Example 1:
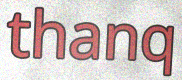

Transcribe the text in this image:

thanq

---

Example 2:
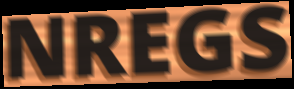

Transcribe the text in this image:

NREGS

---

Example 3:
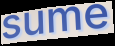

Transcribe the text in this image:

sume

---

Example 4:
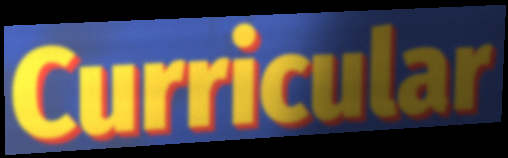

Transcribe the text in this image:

Curricular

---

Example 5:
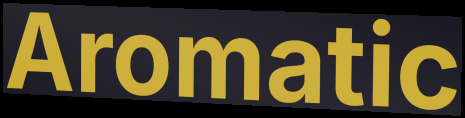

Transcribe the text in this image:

Aromatic